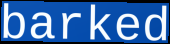
barked